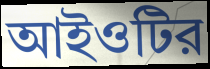
আইওটির